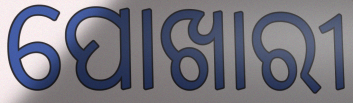
ପୋଖାରୀ